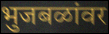
भुजबळांवर